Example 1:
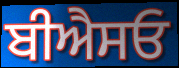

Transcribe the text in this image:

ਬੀਐਸਓ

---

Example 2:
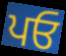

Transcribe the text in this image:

ਪਓ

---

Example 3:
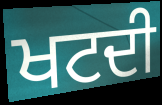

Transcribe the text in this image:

ਖਟਦੀ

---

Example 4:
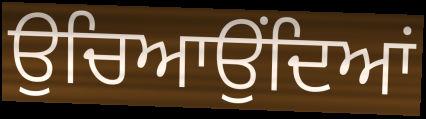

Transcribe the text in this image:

ਉਚਿਆਉਂਦਿਆਂ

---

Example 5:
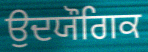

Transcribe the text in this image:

ਉਦਯੌਗਿਕ